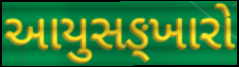
આયુસઙ્ખારો